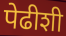
पेढीशी